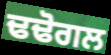
ਢਢੋਗਲ